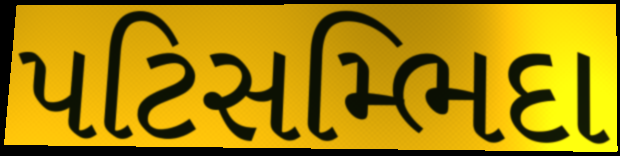
પટિસમ્ભિદા